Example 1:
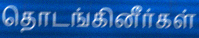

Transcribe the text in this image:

தொடங்கினீர்கள்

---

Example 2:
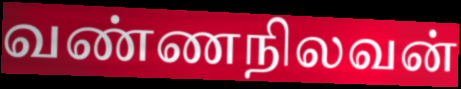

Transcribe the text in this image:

வண்ணநிலவன்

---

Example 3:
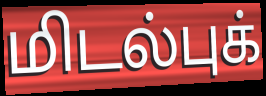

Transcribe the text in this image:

மிடல்புக்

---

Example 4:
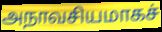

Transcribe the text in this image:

அநாவசியமாகச்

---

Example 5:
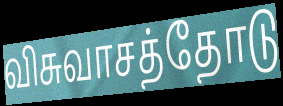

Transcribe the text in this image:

விசுவாசத்தோடு